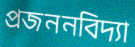
প্রজননবিদ্যা